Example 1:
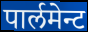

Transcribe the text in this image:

पार्लमेन्ट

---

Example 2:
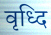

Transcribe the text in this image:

वृध्दि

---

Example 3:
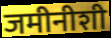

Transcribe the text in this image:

जमीनीशी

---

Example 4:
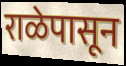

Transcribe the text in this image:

राळेपासून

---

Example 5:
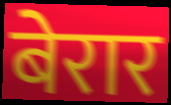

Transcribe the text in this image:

बेरार